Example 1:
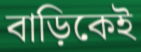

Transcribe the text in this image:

বাড়িকেই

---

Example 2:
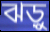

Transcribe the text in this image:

ঝড়ু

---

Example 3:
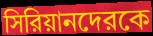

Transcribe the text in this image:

সিরিয়ানদেরকে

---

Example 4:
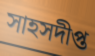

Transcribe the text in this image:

সাহসদীপ্ত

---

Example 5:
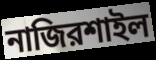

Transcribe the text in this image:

নাজিরশাইল